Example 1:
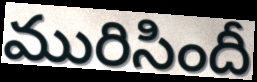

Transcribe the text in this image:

మురిసిందీ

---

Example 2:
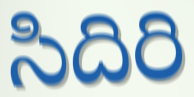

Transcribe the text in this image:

సిదిరి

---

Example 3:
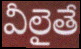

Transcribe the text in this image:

వీలైతే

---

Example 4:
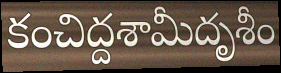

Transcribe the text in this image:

కంచిద్దశామీదృశీం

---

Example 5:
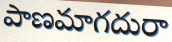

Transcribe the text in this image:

పాణమాగదురా